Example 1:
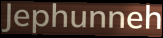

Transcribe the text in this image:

Jephunneh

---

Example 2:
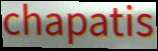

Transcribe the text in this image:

chapatis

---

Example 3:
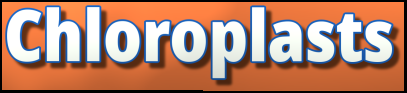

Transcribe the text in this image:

Chloroplasts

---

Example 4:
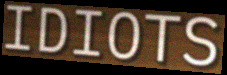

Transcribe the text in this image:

IDIOTS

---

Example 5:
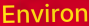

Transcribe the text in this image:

Environ